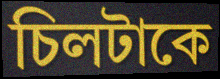
চিলটাকে